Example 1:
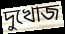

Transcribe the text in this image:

দুখোজ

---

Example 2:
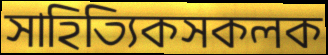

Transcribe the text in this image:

সাহিত্যিকসকলক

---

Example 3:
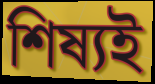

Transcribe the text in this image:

শিষ্যই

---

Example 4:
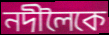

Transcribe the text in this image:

নদীলৈকে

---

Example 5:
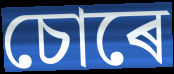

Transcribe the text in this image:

চোৰে